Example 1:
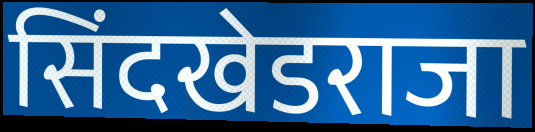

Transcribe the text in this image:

सिंदखेडराजा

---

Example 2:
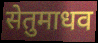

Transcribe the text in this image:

सेतुमाधव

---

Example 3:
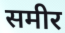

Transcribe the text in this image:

समीर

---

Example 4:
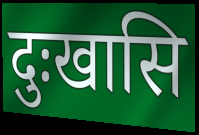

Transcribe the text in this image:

दुःखासि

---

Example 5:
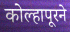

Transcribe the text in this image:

कोल्हापूरने